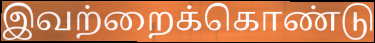
இவற்றைக்கொண்டு